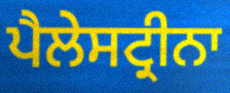
ਪੈਲੇਸਟ੍ਰੀਨਾ